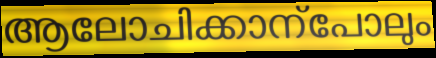
ആലോചിക്കാന്പോലും